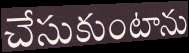
చేసుకుంటాను